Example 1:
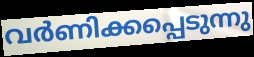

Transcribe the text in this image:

വർണിക്കപ്പെടുന്നു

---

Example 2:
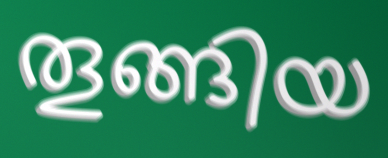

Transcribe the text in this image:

തൂങ്ങിയ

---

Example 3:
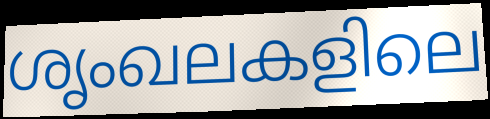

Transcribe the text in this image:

ശൃംഖലകളിലെ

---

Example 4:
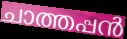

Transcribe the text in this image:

ചാത്തപ്പൻ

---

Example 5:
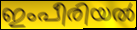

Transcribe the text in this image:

ഇംപീരിയൽ